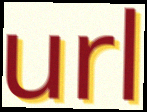
url